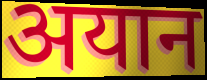
अयान